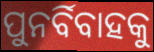
ପୁନର୍ବିବାହକୁ